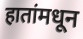
हातांमधून